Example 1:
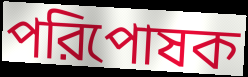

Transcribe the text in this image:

পরিপোষক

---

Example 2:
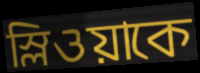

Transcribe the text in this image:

স্লিওয়াকে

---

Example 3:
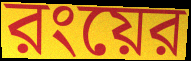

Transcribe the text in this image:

রংয়ের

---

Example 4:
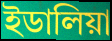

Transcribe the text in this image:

ইডালিয়া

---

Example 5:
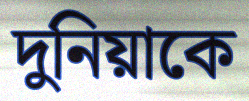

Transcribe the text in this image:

দুনিয়াকে